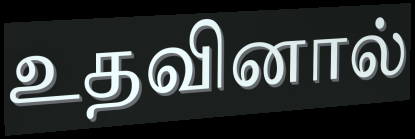
உதவினால்